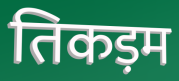
तिकड़म